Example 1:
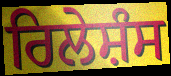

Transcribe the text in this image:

ਰਿਲੇਸ਼ੰਸ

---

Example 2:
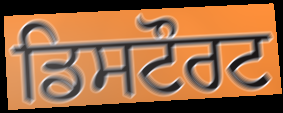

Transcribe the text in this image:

ਡਿਸਟੌਰਟ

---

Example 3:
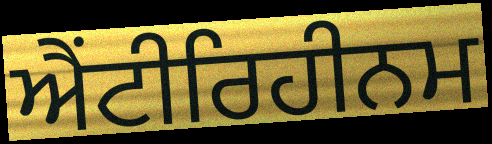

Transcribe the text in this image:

ਐਂਟੀਰਿਹੀਨਮ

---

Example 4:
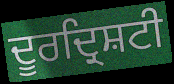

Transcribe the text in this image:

ਦੂਰਦ੍ਰਿਸ਼ਟੀ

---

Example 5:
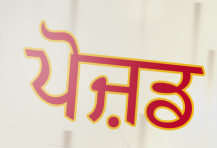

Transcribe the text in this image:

ਪੋਜ਼ਡ